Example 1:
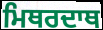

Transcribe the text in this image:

ਮਿਥਰਦਾਥ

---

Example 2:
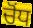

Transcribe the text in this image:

ਚੋਂਧ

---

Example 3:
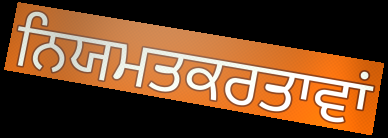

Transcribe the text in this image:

ਨਿਯਮਤਕਰਤਾਵਾਂ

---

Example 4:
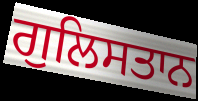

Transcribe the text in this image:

ਗੁਲਿਸਤਾਨ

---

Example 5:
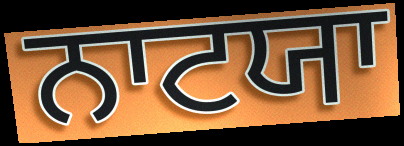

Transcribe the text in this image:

ਨਾਟਯਾ